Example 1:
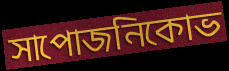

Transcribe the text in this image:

সাপোজনিকোভ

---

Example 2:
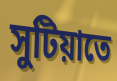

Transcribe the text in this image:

সুটিয়াতে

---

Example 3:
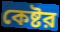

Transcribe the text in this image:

কেষ্টর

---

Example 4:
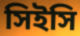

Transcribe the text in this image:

সিইসি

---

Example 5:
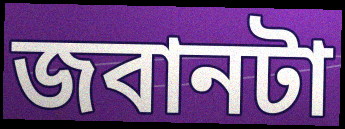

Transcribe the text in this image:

জবানটা